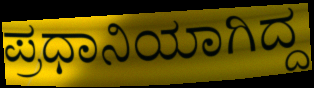
ಪ್ರಧಾನಿಯಾಗಿದ್ದ